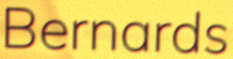
Bernards